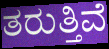
ತರುತ್ತಿವೆ